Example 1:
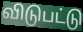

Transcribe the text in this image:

விடுபட்டு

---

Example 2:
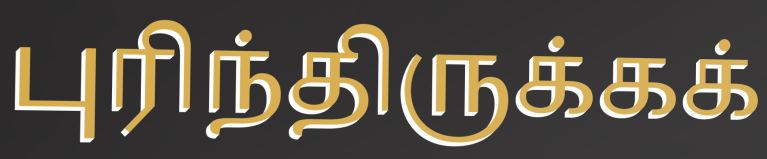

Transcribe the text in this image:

புரிந்திருக்கக்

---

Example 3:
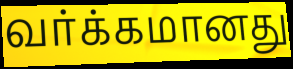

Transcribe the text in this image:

வர்க்கமானது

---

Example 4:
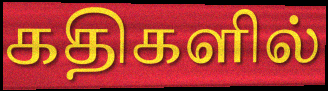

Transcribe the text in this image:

கதிகளில்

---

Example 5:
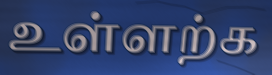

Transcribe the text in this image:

உள்ளற்க